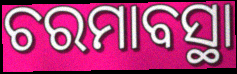
ଚରମାବସ୍ଥା